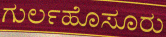
ಗುರ್ಲಹೊಸೂರು